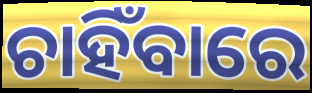
ଚାହିଁବାରେ